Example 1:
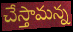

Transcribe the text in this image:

చేస్తామన్న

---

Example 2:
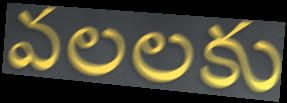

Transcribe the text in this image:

వలలకు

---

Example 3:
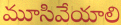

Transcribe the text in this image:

మూసివేయాలి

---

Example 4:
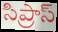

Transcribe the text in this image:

సిప్రాస్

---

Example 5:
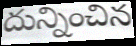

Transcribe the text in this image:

దున్నించిన